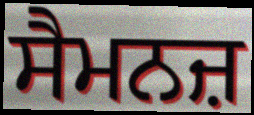
ਸੈਮਨਜ਼